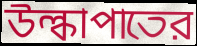
উল্কাপাতের